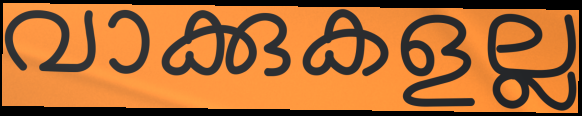
വാക്കുകളല്ല